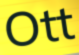
Ott